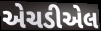
એચડીએલ